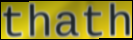
thath